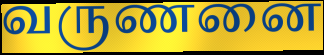
வருணனை